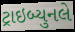
ટ્રાઇબ્યુનલે